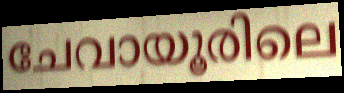
ചേവായൂരിലെ